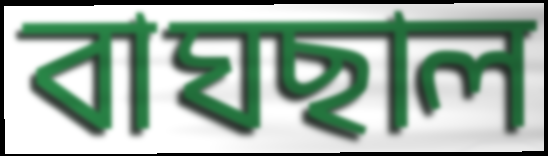
বাঘছাল